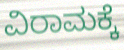
ವಿರಾಮಕ್ಕೆ